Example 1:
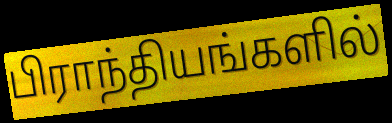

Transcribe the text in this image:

பிராந்தியங்களில்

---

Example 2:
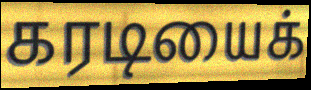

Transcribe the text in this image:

கரடியைக்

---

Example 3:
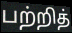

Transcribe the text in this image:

பற்றித்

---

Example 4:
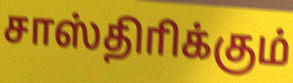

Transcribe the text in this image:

சாஸ்திரிக்கும்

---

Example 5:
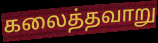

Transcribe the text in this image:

கலைத்தவாறு